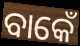
ବାକେଁ